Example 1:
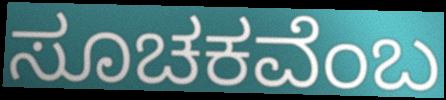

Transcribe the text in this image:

ಸೂಚಕವೆಂಬ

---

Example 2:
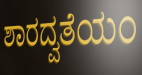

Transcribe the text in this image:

ಶಾರದ್ವತೆಯಂ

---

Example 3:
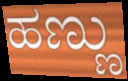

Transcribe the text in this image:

ಹಣ್ಣು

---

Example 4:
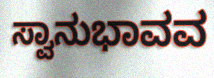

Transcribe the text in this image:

ಸ್ವಾನುಭಾವವ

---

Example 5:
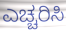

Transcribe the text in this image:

ಎಚ್ಚರಿಸಿ